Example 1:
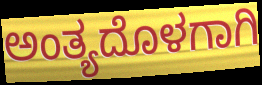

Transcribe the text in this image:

ಅಂತ್ಯದೊಳಗಾಗಿ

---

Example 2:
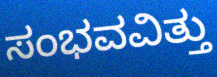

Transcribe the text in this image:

ಸಂಭವವಿತ್ತು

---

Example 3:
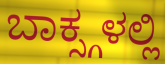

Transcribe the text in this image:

ಬಾಕ್ಸ್ಗಳಲ್ಲಿ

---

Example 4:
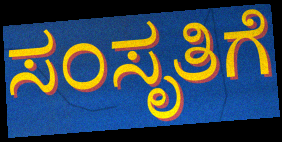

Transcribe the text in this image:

ಸಂಸೃತಿಗೆ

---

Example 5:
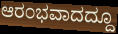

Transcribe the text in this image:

ಆರಂಭವಾದದ್ದೂ